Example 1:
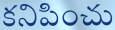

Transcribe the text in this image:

కనిపించు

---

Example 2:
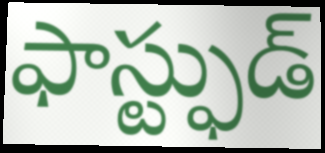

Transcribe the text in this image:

ఫాస్ట్ఫుడ్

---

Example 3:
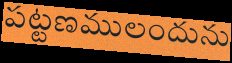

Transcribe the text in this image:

పట్టణములందును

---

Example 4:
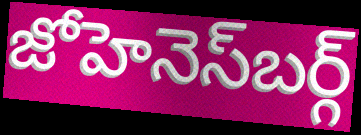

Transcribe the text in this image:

జోహెనెస్‍బర్గ్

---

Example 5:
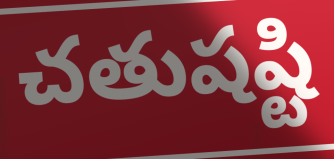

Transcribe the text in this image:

చతుషష్టి